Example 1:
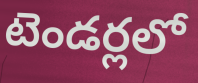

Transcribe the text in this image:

టెండర్లలో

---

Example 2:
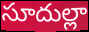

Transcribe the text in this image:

సూదుల్లా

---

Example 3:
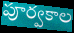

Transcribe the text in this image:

పూర్వకాల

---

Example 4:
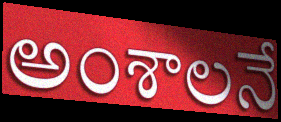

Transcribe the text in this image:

అంశాలనే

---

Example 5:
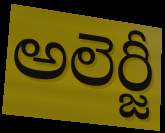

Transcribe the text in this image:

అలెర్జీ